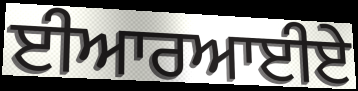
ਈਆਰਆਈਏ